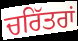
ਚਰਿੱਤਰਾਂ